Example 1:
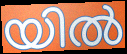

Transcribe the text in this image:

യിൽ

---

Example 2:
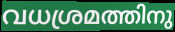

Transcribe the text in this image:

വധശ്രമത്തിനു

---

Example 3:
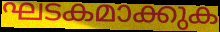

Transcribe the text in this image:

ഘടകമാക്കുക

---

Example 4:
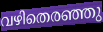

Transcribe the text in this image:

വഴിതെരഞ്ഞു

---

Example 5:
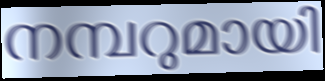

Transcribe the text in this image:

നമ്പറുമായി